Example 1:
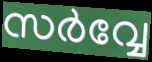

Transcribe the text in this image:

സർവ്വേ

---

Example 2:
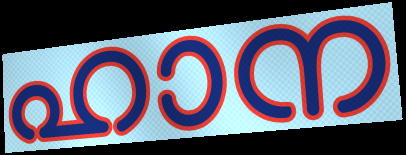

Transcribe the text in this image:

ഹാന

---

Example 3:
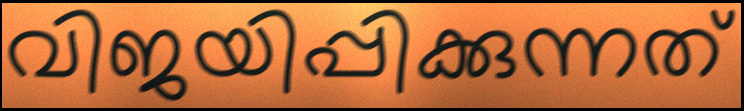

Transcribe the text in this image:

വിജയിപ്പിക്കുന്നത്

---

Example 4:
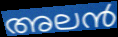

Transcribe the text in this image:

അലൻ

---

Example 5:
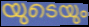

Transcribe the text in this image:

യുടെയും